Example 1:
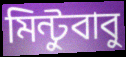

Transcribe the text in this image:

মিন্টুবাবু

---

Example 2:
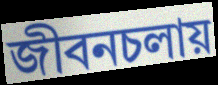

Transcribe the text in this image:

জীবনচলায়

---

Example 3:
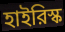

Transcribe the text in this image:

হাইরিস্ক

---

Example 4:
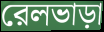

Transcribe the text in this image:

রেলভাড়া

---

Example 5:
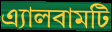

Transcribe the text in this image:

এ্যালবামটি